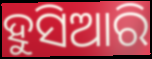
ହୁସିଆରି